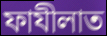
ফাযীলাত